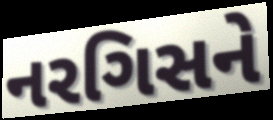
નરગિસને